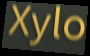
Xylo